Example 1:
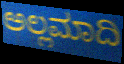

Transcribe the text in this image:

ಅಲ್ಲಮಾದಿ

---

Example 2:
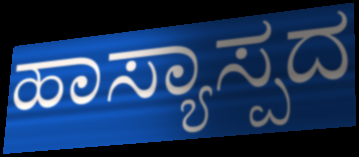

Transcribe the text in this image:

ಹಾಸ್ಯಾಸ್ಪದ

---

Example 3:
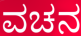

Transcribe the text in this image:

ವಚನ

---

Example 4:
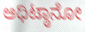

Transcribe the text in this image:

ಅಧಿಟ್ಠಾನೋ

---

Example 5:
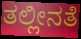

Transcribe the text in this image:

ತಲ್ಲೀನತೆ